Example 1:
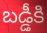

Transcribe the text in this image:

బడ్డీకి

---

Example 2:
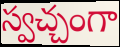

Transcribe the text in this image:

స్వచ్చంగా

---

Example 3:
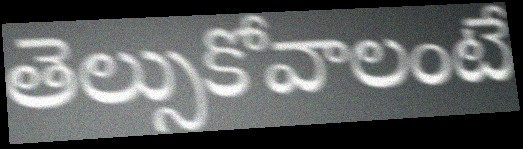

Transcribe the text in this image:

తెల్సుకోవాలంటే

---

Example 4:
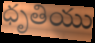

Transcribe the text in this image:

ధృతియు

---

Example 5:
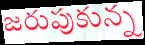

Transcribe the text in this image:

జరుపుకున్న